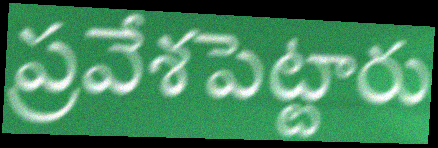
ప్రవేశపెట్టారు